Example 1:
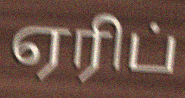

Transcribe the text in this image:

ஏரிப்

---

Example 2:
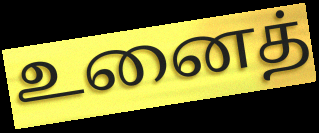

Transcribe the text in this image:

உனைத்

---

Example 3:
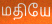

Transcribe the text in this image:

மதியே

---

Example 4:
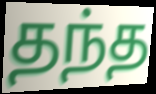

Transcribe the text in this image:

தந்த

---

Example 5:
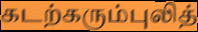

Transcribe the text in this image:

கடற்கரும்புலித்